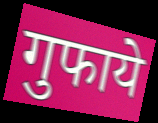
गुफाये